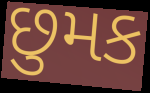
છુમક